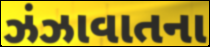
ઝંઝાવાતના